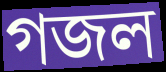
গজল